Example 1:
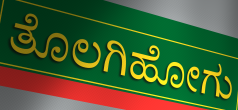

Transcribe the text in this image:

ತೊಲಗಿಹೋಗು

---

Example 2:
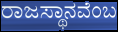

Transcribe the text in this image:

ರಾಜಸ್ಥಾನವೆಂಬ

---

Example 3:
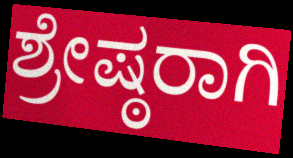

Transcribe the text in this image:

ಶ್ರೇಷ್ಠರಾಗಿ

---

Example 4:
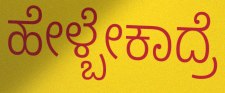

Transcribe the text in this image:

ಹೇಳ್ಬೇಕಾದ್ರೆ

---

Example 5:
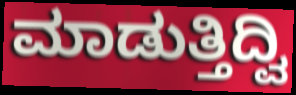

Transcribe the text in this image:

ಮಾಡುತ್ತಿದ್ವಿ